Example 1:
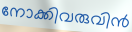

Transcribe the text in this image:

നോക്കിവരുവിൻ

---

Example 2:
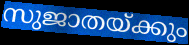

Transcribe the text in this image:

സുജാതയ്ക്കും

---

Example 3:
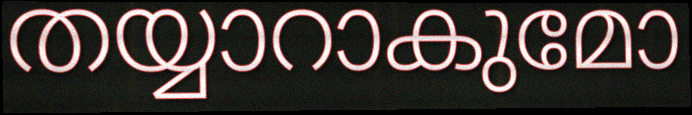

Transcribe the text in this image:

തയ്യാറാകുമോ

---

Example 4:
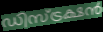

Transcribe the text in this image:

ഡിസ്ട്രക്ഷൻ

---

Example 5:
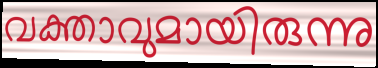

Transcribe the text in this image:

വക്താവുമായിരുന്നു